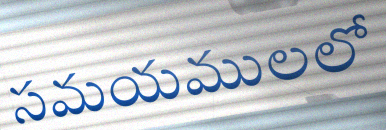
సమయములలో